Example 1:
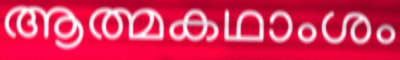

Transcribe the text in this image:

ആത്മകഥാംശം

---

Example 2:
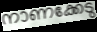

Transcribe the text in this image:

നാണക്കേടു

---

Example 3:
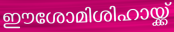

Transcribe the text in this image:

ഈശോമിശിഹായ്ക്ക്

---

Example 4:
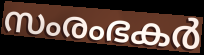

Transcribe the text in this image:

സംരംഭകർ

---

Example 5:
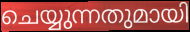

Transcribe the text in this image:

ചെയ്യുന്നതുമായി